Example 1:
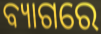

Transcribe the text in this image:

ବ୍ୟାଗରେ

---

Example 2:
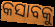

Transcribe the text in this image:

କସାବକୁ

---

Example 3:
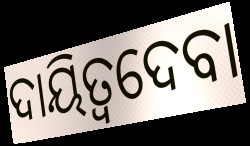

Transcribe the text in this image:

ଦାୟିତ୍ୱଦେବା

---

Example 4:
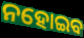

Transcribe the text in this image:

ନହୋଇବ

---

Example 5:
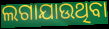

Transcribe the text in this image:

ଲଗାଯାଉଥିବା